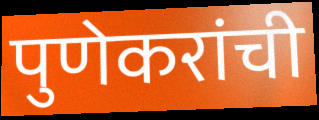
पुणेकरांची